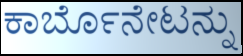
ಕಾರ್ಬೊನೇಟನ್ನು